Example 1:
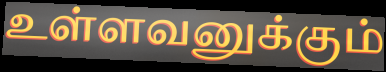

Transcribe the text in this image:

உள்ளவனுக்கும்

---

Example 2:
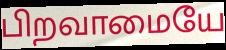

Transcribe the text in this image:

பிறவாமையே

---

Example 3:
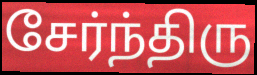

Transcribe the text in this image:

சேர்ந்திரு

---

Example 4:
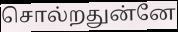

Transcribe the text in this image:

சொல்றதுன்னே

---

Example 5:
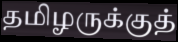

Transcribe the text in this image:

தமிழருக்குத்